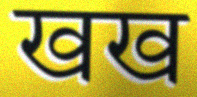
खख